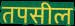
तपसील